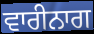
ਵਾਰੀਨਾਗ